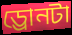
ড্রোনটা